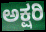
ಅಕ್ಷರಿ